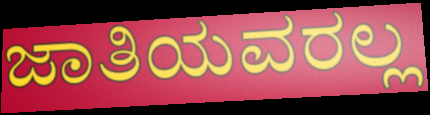
ಜಾತಿಯವರಲ್ಲ